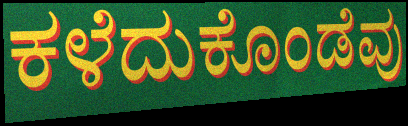
ಕಳೆದುಕೊಂಡೆವು